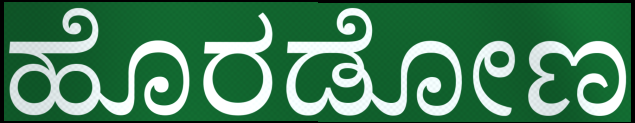
ಹೊರಡೋಣ